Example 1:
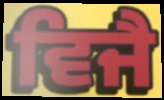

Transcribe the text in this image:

ਵਿਜੈ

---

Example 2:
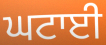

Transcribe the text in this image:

ਘਟਾਈ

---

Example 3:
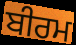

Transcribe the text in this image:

ਬੀਰਮ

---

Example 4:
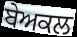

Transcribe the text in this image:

ਬੇਅਕਲ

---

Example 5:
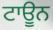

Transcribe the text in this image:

ਟਾਊਨ